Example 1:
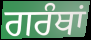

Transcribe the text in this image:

ਗਰੰਥਾਂ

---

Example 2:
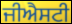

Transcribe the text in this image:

ਜੀਐਸਟੀ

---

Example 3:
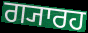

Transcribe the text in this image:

ਗ੍ਯਾਰਹ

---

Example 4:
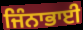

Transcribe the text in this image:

ਜਿੰਨਾਭਾਈ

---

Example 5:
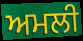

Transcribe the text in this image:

ਅਮਲੀ